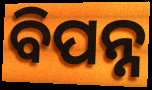
ବିପନ୍ନ